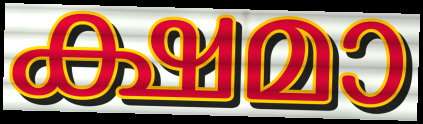
ക്ഷമാ